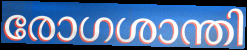
രോഗശാന്തി